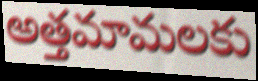
అత్తమామలకు